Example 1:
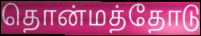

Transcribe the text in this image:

தொன்மத்தோடு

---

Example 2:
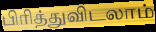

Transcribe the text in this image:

பிரித்துவிடலாம்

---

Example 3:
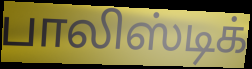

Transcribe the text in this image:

பாலிஸ்டிக்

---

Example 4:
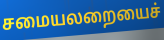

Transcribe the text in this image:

சமையலறையைச்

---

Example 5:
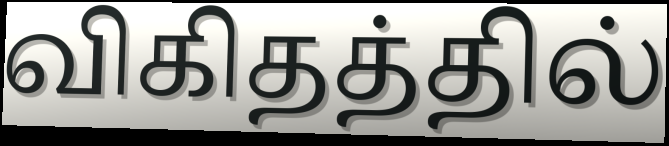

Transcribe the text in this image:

விகிதத்தில்